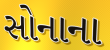
સોનાના